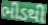
ભીડથી